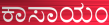
ಕಾಸಾಯಂ